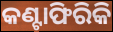
କଣ୍ଟାଫିରିକି